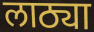
लाठ्या